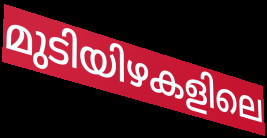
മുടിയിഴകളിലെ